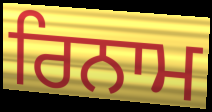
ਰਿਨਾਮ